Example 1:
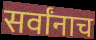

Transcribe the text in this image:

सर्वांनाच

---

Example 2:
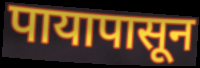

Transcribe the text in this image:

पायापासून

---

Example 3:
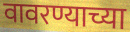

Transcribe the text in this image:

वावरण्याच्या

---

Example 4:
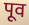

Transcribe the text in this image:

पूव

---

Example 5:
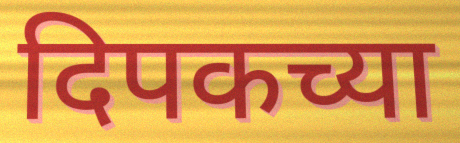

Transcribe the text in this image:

दिपकच्या